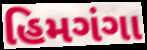
હિમગંગા